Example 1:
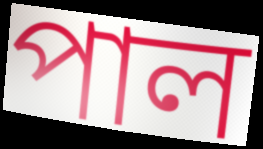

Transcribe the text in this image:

পাল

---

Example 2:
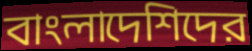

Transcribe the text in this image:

বাংলাদেশিদের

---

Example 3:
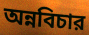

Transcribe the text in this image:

অন্নবিচার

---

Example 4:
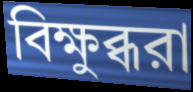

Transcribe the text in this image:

বিক্ষুব্ধরা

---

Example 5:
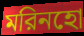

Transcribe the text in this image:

মরিনহো